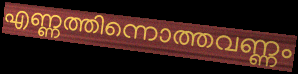
എണ്ണത്തിന്നൊത്തവണ്ണം